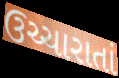
ઉચ્ચારાતાં